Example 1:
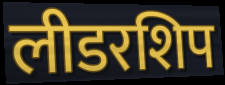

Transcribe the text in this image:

लीडरशिप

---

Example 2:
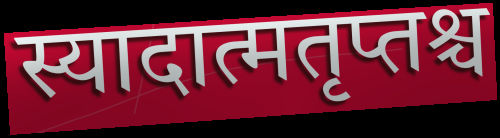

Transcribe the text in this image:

स्यादात्मतृप्तश्च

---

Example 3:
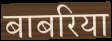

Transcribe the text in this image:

बाबरिया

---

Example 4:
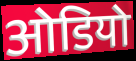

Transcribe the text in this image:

ओडियो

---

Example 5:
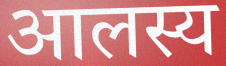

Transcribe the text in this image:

आलस्य